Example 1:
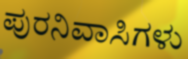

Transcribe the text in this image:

ಪುರನಿವಾಸಿಗಳು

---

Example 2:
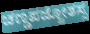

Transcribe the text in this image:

ಚಣ್ಡಪಜ್ಜೋತಸ್ಸ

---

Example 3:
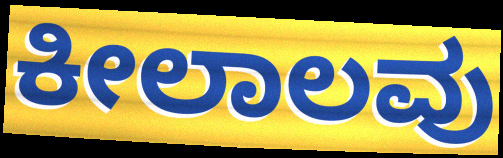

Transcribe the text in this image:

ಕೀಲಾಲವು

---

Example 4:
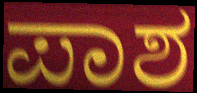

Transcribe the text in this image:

ಪಾಶ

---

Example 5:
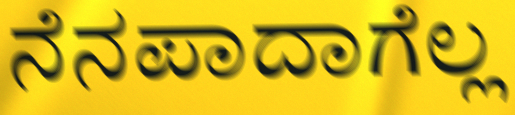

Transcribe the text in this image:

ನೆನಪಾದಾಗೆಲ್ಲ